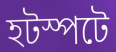
হটস্পটে